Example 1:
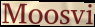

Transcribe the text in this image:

Moosvi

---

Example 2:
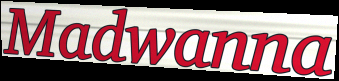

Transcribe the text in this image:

Madwanna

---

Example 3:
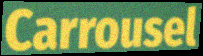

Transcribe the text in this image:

Carrousel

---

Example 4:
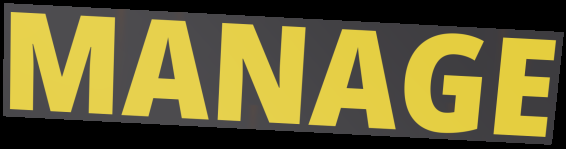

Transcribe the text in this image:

MANAGE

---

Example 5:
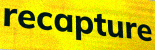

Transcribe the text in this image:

recapture